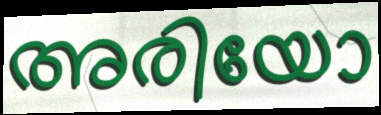
അരിയോ